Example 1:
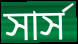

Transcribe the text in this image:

সার্স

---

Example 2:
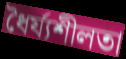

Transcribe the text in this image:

ধৈর্য্যশীলতা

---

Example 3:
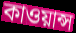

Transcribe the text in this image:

কাওয়ান্স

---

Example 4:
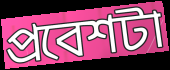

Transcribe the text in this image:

প্রবেশটা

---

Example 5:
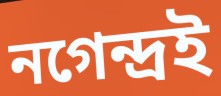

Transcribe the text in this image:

নগেন্দ্রই